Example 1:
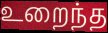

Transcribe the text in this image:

உறைந்த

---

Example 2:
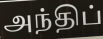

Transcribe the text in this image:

அந்திப்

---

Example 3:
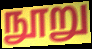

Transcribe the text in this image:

நூறு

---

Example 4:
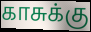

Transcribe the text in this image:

காசுக்கு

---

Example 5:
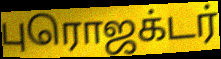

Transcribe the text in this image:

புரொஜக்டர்